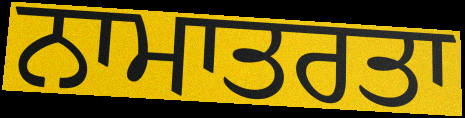
ਨਾਮਾਤਰਤਾ